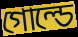
গোল্ডে